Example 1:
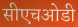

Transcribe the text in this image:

सीएचओडी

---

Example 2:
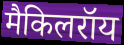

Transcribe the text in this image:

मैकिलरॉय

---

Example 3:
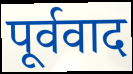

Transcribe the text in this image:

पूर्ववाद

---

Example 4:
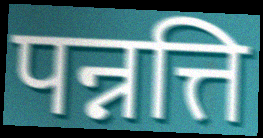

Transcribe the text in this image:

पन्नत्ति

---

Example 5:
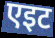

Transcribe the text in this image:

एइट